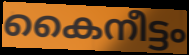
കൈനീട്ടം